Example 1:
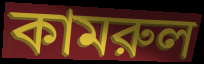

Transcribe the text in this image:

কামরুল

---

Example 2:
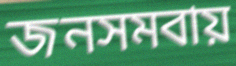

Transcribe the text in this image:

জনসমবায়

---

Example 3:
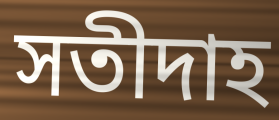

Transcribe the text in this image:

সতীদাহ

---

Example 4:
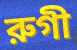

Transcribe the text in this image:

রুগী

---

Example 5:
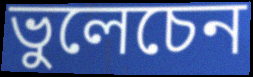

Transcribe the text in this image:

ভুলেচেন